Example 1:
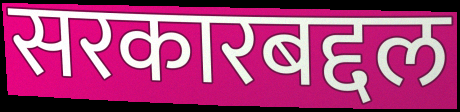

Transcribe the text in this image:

सरकारबद्दल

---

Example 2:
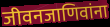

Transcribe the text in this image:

जीवनजाणिवांना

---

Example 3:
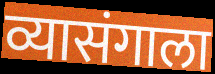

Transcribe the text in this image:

व्यासंगाला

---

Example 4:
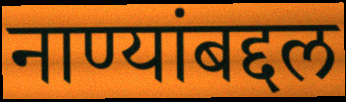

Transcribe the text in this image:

नाण्यांबद्दल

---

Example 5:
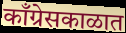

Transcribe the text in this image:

काँग्रेसकाळात